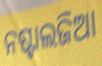
ନଷ୍ଟାଲଜିଆ